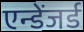
एन्डेंजर्ड